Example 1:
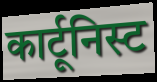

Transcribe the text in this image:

कार्टूनिस्ट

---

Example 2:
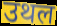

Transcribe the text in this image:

उथल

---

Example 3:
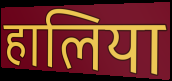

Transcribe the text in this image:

हालिया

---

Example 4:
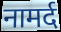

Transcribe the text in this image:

नामर्द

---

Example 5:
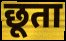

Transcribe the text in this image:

छूता